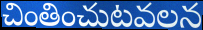
చింతించుటవలన